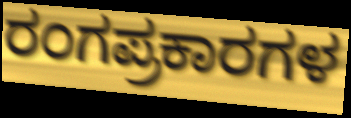
ರಂಗಪ್ರಕಾರಗಳ